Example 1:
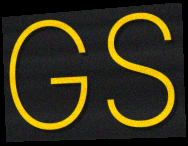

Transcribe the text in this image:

GS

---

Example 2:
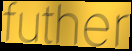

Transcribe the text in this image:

futher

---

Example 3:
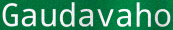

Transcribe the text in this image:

Gaudavaho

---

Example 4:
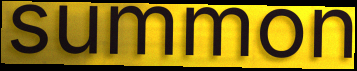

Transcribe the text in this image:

summon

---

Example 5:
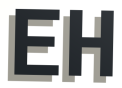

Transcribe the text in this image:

EH